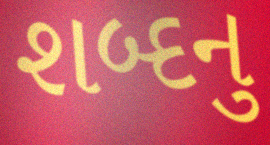
શબ્દનુ